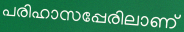
പരിഹാസപ്പേരിലാണ്